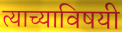
त्याच्याविषयी